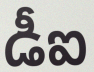
డీఐ